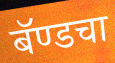
बॅण्डचा